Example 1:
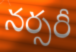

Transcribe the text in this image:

నర్సరీ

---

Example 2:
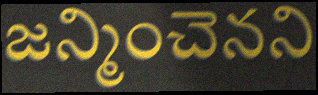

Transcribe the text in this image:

జన్మించెనని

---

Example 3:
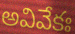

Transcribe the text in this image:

అవివేకః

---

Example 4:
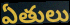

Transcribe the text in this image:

ఏతులు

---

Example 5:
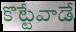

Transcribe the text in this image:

కొట్టేవాడే